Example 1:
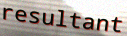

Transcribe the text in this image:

resultant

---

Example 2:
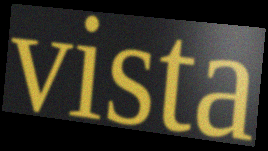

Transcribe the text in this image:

vista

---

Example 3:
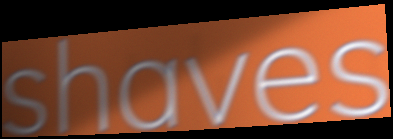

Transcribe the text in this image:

shaves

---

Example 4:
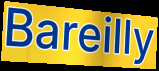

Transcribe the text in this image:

Bareilly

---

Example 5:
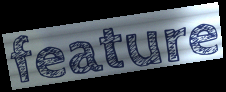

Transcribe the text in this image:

feature